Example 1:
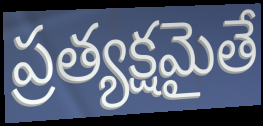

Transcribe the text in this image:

ప్రత్యక్షమైతే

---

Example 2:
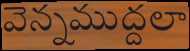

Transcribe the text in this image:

వెన్నముద్దలా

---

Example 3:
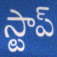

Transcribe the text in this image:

స్టాప్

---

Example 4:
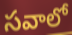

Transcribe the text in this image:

సవాలో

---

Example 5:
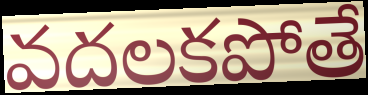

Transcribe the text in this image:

వదలకపోతే